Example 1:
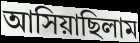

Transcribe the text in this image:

আসিয়াছিলাম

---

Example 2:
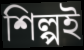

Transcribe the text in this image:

শিল্পই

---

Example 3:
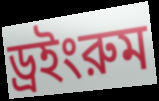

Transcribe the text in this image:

ড্রইংরুম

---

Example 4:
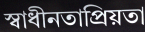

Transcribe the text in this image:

স্বাধীনতাপ্রিয়তা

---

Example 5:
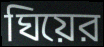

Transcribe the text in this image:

ঘিয়ের